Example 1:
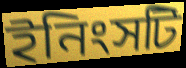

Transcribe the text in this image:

ইনিংসটি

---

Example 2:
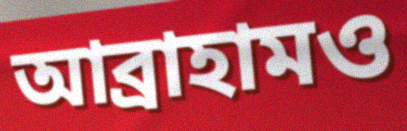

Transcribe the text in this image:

আব্রাহামও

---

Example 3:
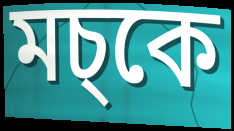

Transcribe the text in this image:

মচ্কে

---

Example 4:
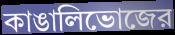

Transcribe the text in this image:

কাঙালিভোজের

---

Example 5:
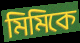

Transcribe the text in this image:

মিমিকে